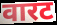
वारट